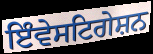
ਇੰਵੇਸਟਿਗੇਸ਼ਨ